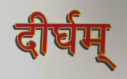
दीर्घम्